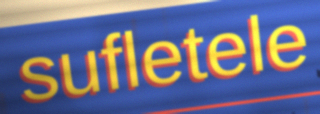
sufletele